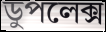
ডুপলেক্স